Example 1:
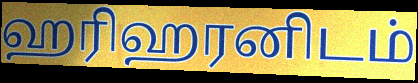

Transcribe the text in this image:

ஹரிஹரனிடம்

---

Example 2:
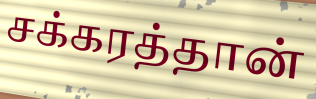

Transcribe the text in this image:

சக்கரத்தான்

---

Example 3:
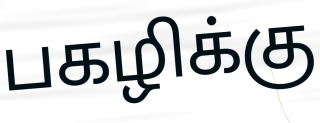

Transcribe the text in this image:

பகழிக்கு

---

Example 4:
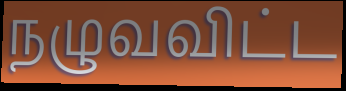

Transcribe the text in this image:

நழுவவிட்ட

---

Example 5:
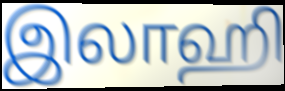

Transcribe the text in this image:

இலாஹி